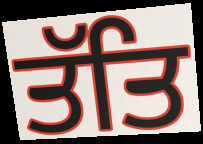
ਤੱਤਿ